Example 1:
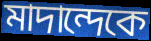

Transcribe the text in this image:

মাদান্দেকে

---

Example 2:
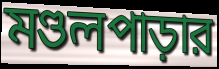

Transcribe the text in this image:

মণ্ডলপাড়ার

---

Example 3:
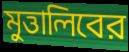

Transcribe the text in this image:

মুত্তালিবের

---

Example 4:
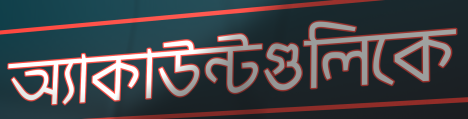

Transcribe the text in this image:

অ্যাকাউন্টগুলিকে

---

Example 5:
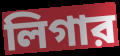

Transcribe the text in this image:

লিগার